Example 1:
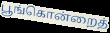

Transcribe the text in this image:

பூங்கொன்றைத்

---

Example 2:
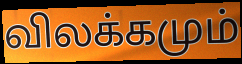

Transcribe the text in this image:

விலக்கமும்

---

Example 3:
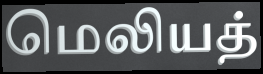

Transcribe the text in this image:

மெலியத்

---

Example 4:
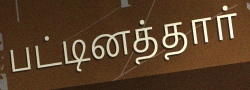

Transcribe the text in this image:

பட்டினத்தார்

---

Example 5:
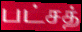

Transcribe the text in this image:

பட்சத்